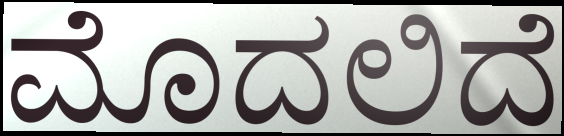
ಮೊದಲಿದೆ